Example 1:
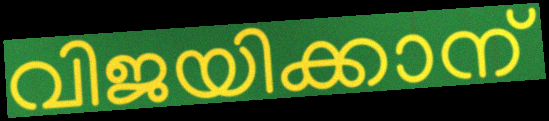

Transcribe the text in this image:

വിജയിക്കാന്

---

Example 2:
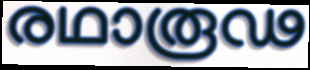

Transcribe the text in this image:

രഥാരൂഢ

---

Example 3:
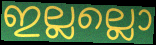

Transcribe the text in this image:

ഇല്ലല്ലൊ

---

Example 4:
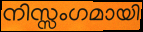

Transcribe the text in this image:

നിസ്സംഗമായി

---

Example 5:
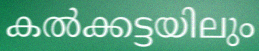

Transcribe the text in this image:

കൽക്കട്ടയിലും